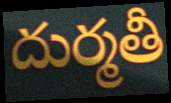
దుర్మతీ